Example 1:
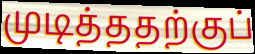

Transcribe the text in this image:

முடித்ததற்குப்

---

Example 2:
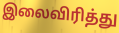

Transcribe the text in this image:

இலைவிரித்து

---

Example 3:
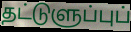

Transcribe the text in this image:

தட்டுளுப்புப்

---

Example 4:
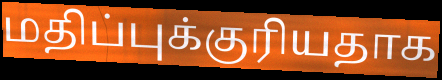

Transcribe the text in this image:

மதிப்புக்குரியதாக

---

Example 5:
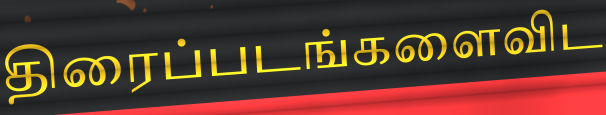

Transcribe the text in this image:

திரைப்படங்களைவிட